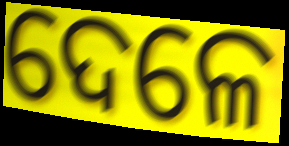
ଦେଳେ